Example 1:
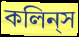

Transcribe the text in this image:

কলিন্‌স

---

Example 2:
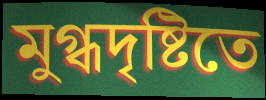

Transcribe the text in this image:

মুগ্ধদৃষ্টিতে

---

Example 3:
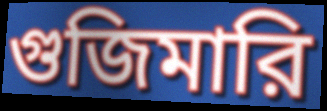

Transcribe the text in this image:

গুজিমারি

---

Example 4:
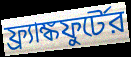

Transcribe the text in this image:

ফ্র্যাঙ্কফুর্টের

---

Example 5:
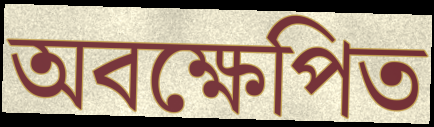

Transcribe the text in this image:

অবক্ষেপিত